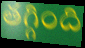
తగ్గింది